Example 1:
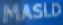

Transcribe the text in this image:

MASLD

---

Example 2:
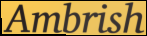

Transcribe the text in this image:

Ambrish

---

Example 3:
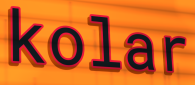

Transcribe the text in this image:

kolar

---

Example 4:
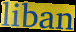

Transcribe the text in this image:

liban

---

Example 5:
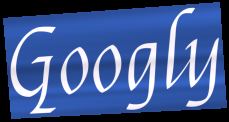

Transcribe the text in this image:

Googly